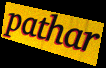
pathar